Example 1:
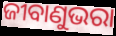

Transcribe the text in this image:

ଜୀବାଣୁଭରା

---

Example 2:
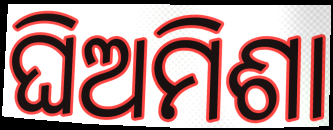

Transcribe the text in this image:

ଘିଅମିଶା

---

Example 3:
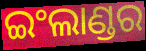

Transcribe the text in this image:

ଇଂଲାଣ୍ଡର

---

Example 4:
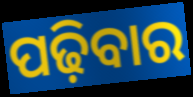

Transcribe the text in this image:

ପଢ଼ିବାର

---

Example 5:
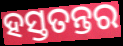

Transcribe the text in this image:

ହସ୍ତତନ୍ତର